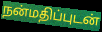
நன்மதிப்புடன்